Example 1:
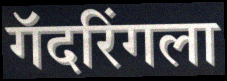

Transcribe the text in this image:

गॅदरिंगला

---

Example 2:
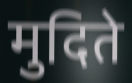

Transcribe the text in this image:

मुदिते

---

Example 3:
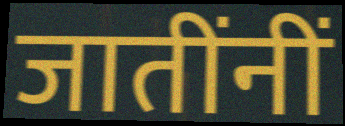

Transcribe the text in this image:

जातींनीं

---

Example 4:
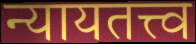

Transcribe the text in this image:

न्यायतत्त्व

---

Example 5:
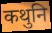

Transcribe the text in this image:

कथुनि